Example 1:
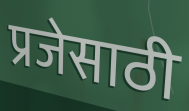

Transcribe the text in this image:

प्रजेसाठी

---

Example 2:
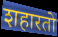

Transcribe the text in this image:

शहारतो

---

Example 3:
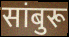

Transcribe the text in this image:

सांबुरू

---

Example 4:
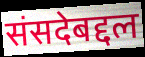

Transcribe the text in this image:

संसदेबद्दल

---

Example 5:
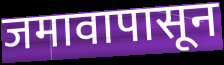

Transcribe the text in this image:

जमावापासून